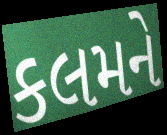
કલમને